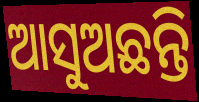
ଆସୁଅଛନ୍ତି